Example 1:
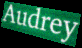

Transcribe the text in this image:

Audrey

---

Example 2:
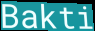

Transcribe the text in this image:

Bakti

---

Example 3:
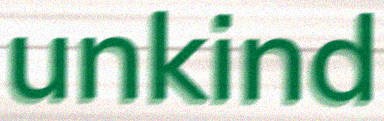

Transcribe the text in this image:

unkind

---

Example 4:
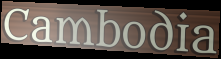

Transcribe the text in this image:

Cambodia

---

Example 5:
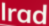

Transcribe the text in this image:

Irad